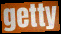
getty